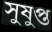
সুষুপ্ত